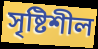
সৃষ্টিশীল